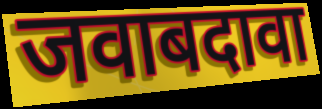
जवाबदावा